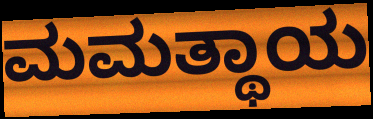
ಮಮತ್ಥಾಯ